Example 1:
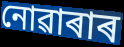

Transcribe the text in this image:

নোৱাৰাৰ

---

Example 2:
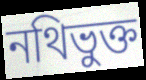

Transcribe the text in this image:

নথিভুক্ত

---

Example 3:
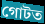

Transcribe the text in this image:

গোটত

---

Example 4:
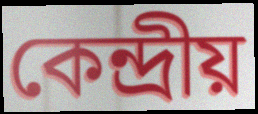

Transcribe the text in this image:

কেন্দ্ৰীয়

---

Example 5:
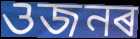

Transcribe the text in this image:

ওজনৰ